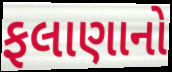
ફલાણાનો